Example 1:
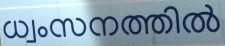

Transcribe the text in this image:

ധ്വംസനത്തിൽ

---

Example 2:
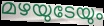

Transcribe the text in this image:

മഴയുടേയും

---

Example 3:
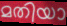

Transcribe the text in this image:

മതിയാ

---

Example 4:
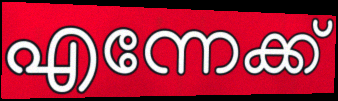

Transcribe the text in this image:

എന്നേക്ക്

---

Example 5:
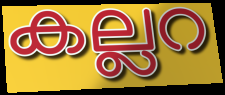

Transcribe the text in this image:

കല്ലറ